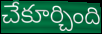
చేకూర్చింది